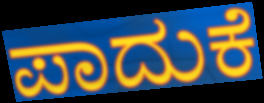
ಪಾದುಕೆ